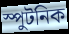
স্পুটনিক